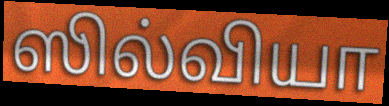
ஸில்வியா